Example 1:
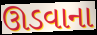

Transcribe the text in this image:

ઊડવાના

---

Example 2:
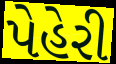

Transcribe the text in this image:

પેહેરી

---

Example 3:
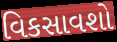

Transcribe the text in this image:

વિકસાવશો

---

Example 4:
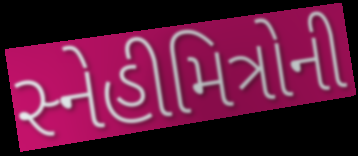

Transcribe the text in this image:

સ્નેહીમિત્રોની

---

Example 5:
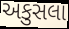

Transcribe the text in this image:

અકુસલા